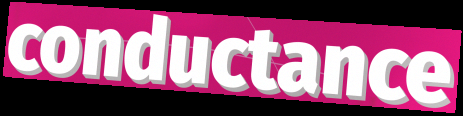
conductance